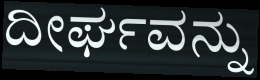
ದೀರ್ಘವನ್ನು